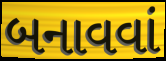
બનાવવાં